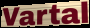
Vartal